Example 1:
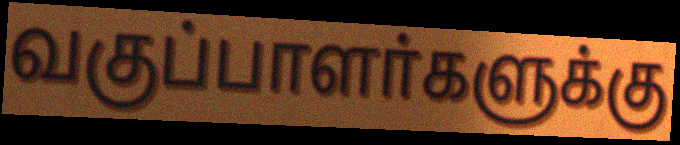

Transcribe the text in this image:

வகுப்பாளர்களுக்கு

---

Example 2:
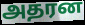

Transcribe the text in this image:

அதரன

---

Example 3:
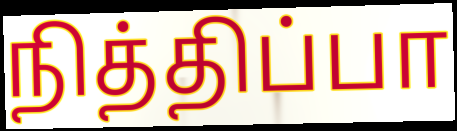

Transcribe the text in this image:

நித்திப்பா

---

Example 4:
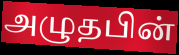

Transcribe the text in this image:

அழுதபின்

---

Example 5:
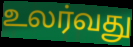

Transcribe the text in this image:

உலர்வது